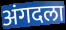
अंगदला